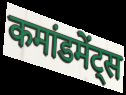
कमांडमेंट्स